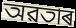
অৱতাৰ